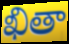
ఖితా